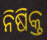
ନିଷିକ୍ତ